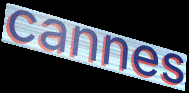
cannes